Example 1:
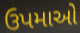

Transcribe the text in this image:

ઉપમાઓ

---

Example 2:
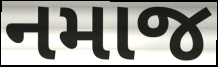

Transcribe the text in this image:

નમાજ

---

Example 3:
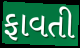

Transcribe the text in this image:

ફાવતી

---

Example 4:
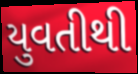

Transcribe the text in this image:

યુવતીથી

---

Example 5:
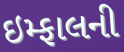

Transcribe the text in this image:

ઇમ્ફાલની